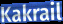
Kakrail